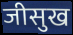
जीसुख